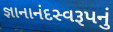
જ્ઞાનાનંદસ્વરૂપનું